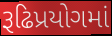
રૂઢિપ્રયોગમાં